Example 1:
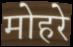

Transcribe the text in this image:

मोहरे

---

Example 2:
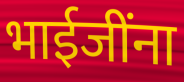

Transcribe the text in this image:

भाईजींना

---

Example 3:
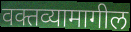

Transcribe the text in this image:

वक्तव्यामागील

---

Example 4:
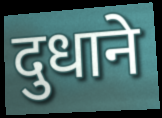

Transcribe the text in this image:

दुधाने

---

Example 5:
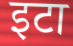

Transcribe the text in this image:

इटा